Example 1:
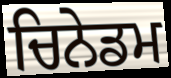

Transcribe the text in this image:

ਚਿਨੇਡਮ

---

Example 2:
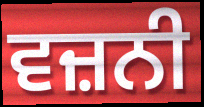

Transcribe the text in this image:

ਵਜ਼ਨੀ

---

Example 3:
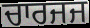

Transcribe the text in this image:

ਚਾਰਜਜ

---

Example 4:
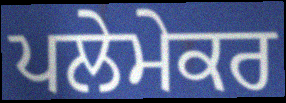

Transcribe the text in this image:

ਪਲੇਮੇਕਰ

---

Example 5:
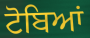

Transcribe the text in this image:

ਟੋਬਿਆਂ